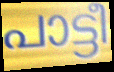
പാട്ടീ